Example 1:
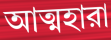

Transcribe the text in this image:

আত্মহারা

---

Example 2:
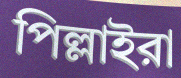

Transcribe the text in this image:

পিল্লাইরা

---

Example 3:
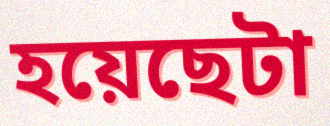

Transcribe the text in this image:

হয়েছেটা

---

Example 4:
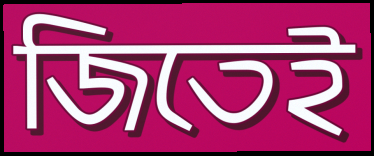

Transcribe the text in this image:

জিতেই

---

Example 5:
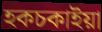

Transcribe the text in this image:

হকচকাইয়া